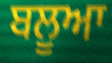
ਬਲੂਆ